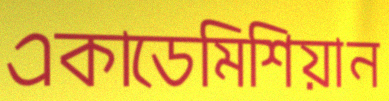
একাডেমিশিয়ান